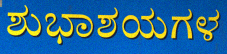
ಶುಭಾಶಯಗಳ